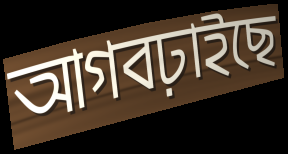
আগবঢ়াইছে